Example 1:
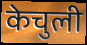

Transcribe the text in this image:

केचुली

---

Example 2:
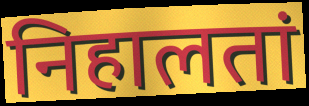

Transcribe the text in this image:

निहालतां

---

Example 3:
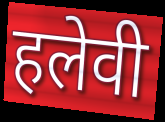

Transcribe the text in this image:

हलेवी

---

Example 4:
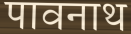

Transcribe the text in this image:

पावनाथ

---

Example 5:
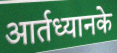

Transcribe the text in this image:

आर्तध्यानके